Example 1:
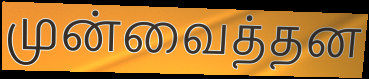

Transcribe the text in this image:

முன்வைத்தன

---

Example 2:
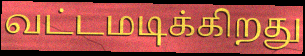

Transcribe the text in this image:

வட்டமடிக்கிறது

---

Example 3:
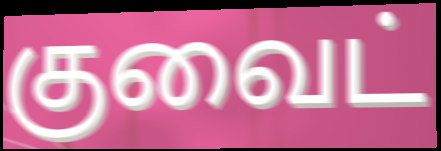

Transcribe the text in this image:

குவைட்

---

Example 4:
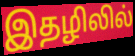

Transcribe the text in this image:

இதழிலில்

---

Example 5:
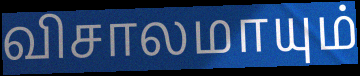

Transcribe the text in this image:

விசாலமாயும்